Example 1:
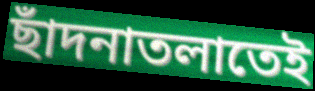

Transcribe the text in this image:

ছাঁদনাতলাতেই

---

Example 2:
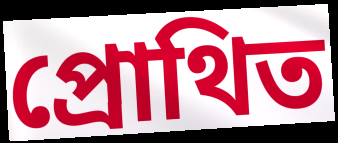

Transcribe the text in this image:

প্রোথিত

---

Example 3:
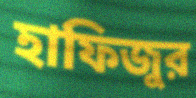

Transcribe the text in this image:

হাফিজুর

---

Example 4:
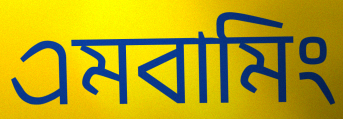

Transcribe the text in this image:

এমবামিং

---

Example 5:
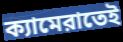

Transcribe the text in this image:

ক্যামেরাতেই